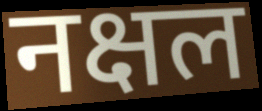
नक्षल